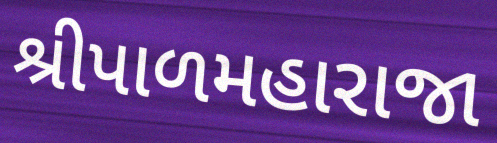
શ્રીપાળમહારાજા